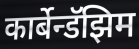
कार्बेन्डॅझिम